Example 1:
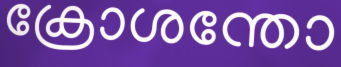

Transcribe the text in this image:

ക്രോശന്തോ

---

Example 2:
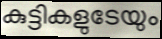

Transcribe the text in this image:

കുട്ടികളുടേയും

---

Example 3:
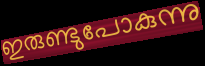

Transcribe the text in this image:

ഇരുണ്ടുപോകുന്നു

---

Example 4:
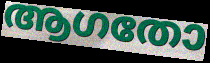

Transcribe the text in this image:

ആഗതോ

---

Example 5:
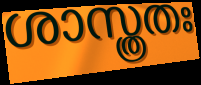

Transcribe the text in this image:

ശാസ്ത്രതഃ